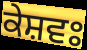
ਕੇਸ਼ਵਃ